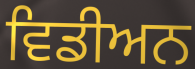
ਵਿਡੀਅਨ